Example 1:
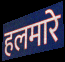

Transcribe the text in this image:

हलमारे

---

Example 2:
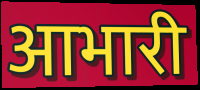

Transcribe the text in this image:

आभारी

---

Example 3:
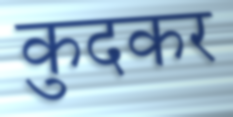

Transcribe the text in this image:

कुदकर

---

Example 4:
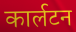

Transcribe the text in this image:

कार्लटन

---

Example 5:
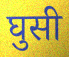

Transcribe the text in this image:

घुसी